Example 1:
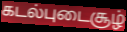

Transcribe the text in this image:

கடல்புடைசூழ்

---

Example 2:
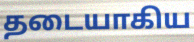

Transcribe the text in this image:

தடையாகிய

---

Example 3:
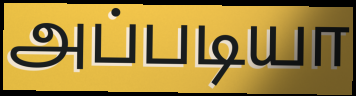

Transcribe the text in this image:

அப்படியா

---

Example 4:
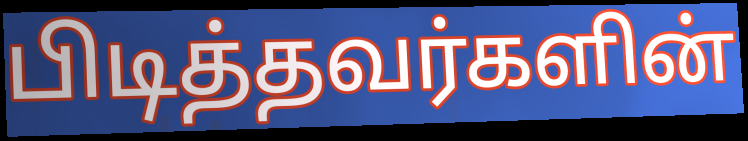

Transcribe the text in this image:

பிடித்தவர்களின்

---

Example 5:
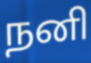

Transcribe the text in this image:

நனி